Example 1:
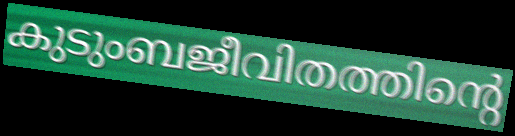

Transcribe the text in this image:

കുടുംബജീവിതത്തിന്റെ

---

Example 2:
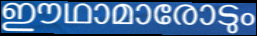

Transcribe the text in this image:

ഈഥാമാരോടും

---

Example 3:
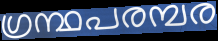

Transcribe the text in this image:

ഗ്രന്ഥപരമ്പര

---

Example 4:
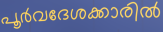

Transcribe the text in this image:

പൂർവദേശക്കാരിൽ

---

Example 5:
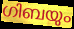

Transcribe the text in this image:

ഗിബയും